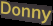
Donny